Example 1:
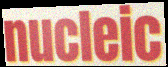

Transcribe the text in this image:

nucleic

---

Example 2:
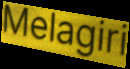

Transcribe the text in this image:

Melagiri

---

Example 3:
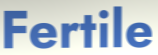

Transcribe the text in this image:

Fertile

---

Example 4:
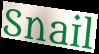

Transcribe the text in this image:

Snail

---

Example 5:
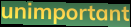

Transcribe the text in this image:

unimportant